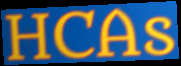
HCAs